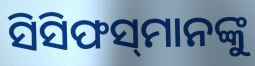
ସିସିଫସ୍‌ମାନଙ୍କୁ